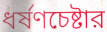
ধর্ষণচেষ্টার